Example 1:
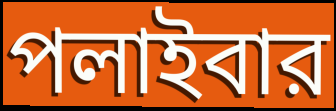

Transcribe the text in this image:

পলাইবার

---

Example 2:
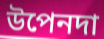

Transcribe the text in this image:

উপেনদা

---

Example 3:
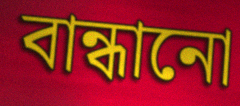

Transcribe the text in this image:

বান্ধানো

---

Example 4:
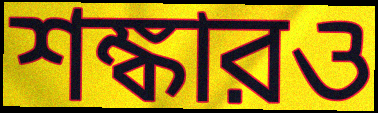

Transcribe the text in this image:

শঙ্কারও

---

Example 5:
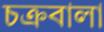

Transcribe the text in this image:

চক্রবালা